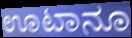
ಊಟಾನೂ